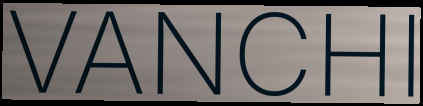
VANCHI